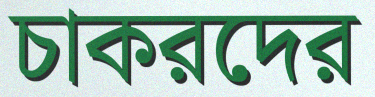
চাকরদের